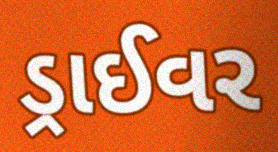
ડ્રાઈવર